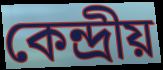
কেন্দ্ৰীয়